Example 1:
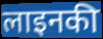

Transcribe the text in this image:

लाइनकी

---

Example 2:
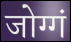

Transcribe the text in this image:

जोग्गं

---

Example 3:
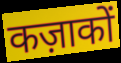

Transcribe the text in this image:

कज़ाकों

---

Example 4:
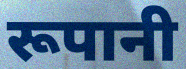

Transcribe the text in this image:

रूपानी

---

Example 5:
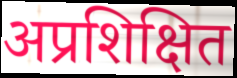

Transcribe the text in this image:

अप्रशिक्षित